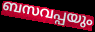
ബസവപ്പയും